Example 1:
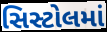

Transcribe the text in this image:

સિસ્ટોલમાં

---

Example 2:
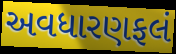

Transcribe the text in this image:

અવધારણફલં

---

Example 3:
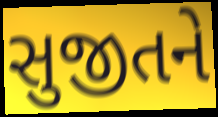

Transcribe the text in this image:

સુજીતને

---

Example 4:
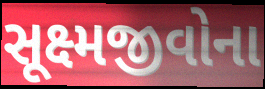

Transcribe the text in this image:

સૂક્ષ્મજીવોના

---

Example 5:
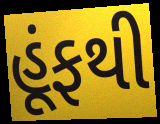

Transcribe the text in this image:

હૂંફથી